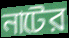
নাটের